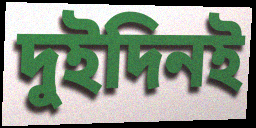
দুইদিনই